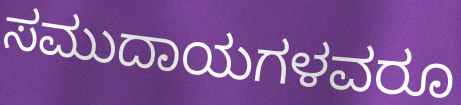
ಸಮುದಾಯಗಳವರೂ